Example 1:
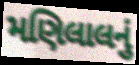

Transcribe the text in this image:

મણિલાલનું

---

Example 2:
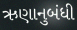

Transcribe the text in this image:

ઋણાનુબંધી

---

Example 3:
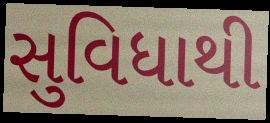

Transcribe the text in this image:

સુવિધાથી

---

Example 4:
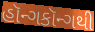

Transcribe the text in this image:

હૉન્ગકૉન્ગથી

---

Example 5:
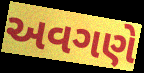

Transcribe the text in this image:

અવગણે